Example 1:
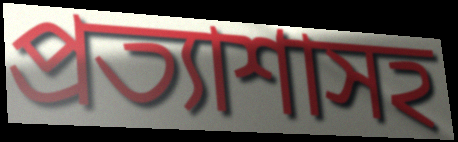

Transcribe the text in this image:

প্রত্যাশাসহ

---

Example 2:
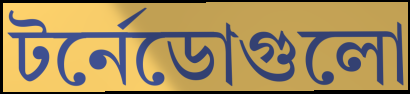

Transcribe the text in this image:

টর্নেডোগুলো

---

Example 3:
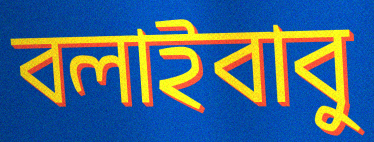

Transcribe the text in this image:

বলাইবাবু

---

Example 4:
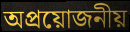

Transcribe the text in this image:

অপ্রয়োজনীয়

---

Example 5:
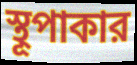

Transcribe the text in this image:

স্থূপাকার